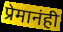
प्रेमानंही